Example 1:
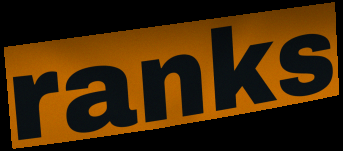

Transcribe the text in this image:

ranks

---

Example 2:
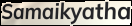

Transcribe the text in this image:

Samaikyatha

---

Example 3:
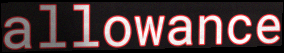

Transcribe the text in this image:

allowance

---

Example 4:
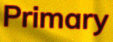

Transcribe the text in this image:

Primary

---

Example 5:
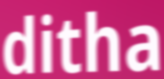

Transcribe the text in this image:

ditha